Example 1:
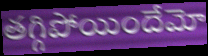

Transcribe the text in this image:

తగ్గిపోయిందేమో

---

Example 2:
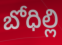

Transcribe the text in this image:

బోధిల్లి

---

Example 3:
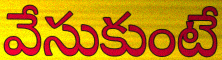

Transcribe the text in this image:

వేసుకుంటే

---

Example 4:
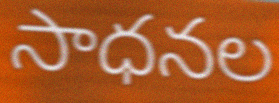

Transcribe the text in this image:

సాధనల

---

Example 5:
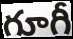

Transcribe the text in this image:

గూగీ